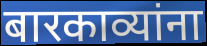
बारकाव्यांना